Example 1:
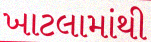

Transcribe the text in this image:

ખાટલામાંથી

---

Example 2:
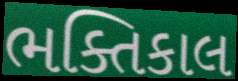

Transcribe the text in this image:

ભક્તિકાલ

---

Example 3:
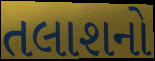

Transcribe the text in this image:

તલાશનો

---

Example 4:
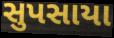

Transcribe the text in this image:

સુપસાયા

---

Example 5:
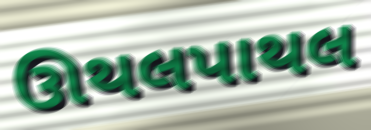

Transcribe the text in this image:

ઊથલપાથલ